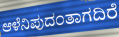
ಆಳೆನಿಪುದಂತಾಗದಿರೆ